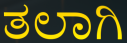
ತಲಾಗಿ